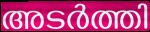
അടർത്തി